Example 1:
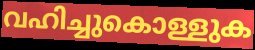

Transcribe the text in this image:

വഹിച്ചുകൊള്ളുക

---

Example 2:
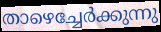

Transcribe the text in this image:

താഴെച്ചേർക്കുന്നു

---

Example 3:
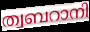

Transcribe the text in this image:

ത്വബറാനി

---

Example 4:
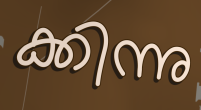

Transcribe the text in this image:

ക്കിന്നു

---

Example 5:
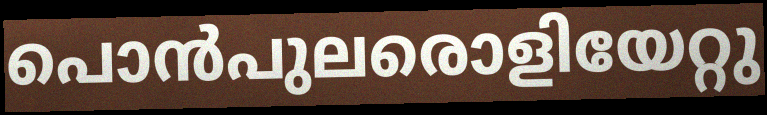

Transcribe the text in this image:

പൊൻപുലരൊളിയേറ്റു